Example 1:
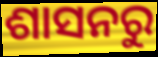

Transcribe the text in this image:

ଶାସନରୁ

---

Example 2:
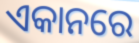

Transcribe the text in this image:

ଏକାନରେ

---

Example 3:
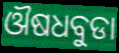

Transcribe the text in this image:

ଔଷଧବୁଡା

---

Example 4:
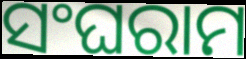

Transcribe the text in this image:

ସଂଘରାମ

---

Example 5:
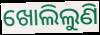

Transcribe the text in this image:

ଖୋଲିଲୁଣି